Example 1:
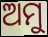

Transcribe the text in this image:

ଅମୁ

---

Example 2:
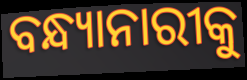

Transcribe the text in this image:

ବନ୍ଧ୍ୟାନାରୀକୁ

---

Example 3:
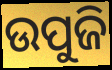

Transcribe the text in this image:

ଉପୁଜି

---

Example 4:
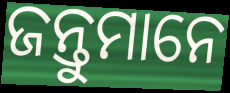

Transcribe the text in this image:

ଜନ୍ତୁମାନେ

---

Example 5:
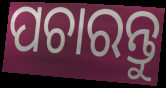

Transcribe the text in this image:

ପଚାରନ୍ତୁ